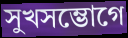
সুখসম্ভোগে